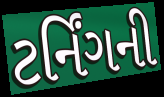
ટર્નિંગની